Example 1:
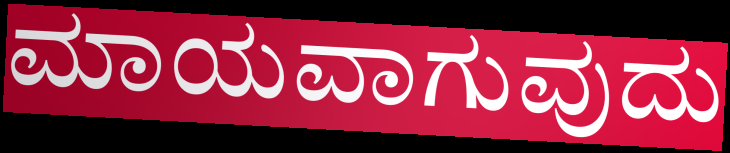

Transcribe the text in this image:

ಮಾಯವಾಗುವುದು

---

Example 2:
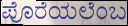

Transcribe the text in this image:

ಪೊರೆಯಲೆಂಬ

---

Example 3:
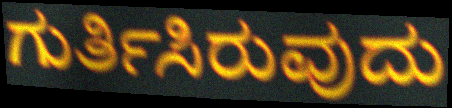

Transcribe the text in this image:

ಗುರ್ತಿಸಿರುವುದು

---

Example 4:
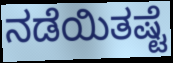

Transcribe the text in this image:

ನಡೆಯಿತಷ್ಟೆ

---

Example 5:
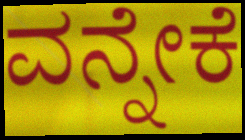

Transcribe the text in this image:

ವನ್ನೇಕೆ